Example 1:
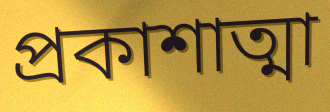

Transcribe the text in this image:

প্রকাশাত্মা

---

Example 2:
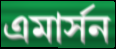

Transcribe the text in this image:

এমার্সন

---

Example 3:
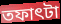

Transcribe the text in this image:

তফাৎটা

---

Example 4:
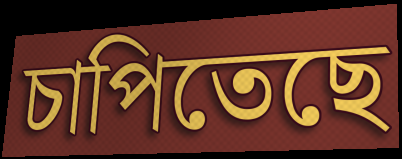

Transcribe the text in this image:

চাপিতেছে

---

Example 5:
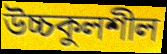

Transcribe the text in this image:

উচ্চকুলশীল